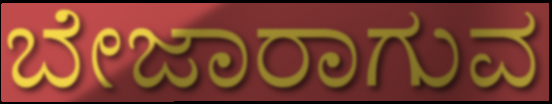
ಬೇಜಾರಾಗುವ